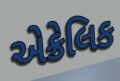
એક્રેલિક